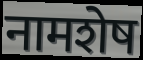
नामशेष